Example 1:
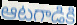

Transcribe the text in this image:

ఆటగాడికి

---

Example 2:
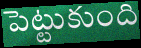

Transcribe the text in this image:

పెట్టుకుంది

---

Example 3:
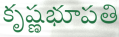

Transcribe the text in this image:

కృష్ణభూపతి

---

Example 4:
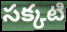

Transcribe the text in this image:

సక్కటి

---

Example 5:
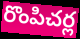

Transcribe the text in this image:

రొంపిచర్ల